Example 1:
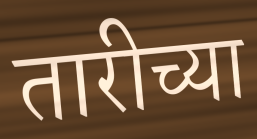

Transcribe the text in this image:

तारीच्या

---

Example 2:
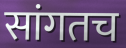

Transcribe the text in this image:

सांगतच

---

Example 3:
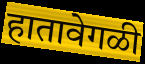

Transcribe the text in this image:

हातावेगळी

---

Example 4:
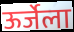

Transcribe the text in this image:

ऊर्जेला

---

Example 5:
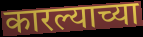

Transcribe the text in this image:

कारल्याच्या